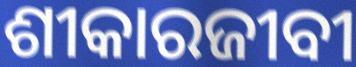
ଶୀକାରଜୀବୀ